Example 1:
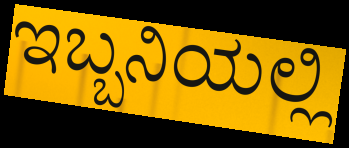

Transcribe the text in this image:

ಇಬ್ಬನಿಯಲ್ಲಿ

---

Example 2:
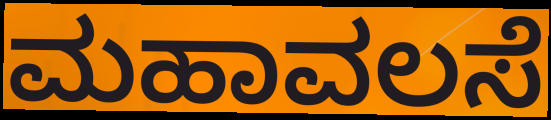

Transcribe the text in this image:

ಮಹಾವಲಸೆ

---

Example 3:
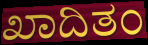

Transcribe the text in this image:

ಖಾದಿತಂ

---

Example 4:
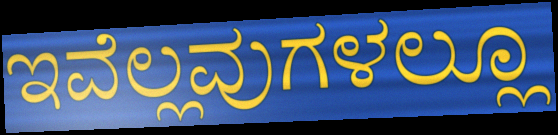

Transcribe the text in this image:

ಇವೆಲ್ಲವುಗಳಲ್ಲೂ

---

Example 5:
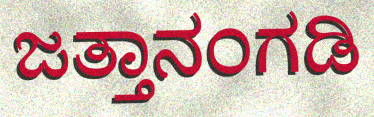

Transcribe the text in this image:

ಜತ್ತಾನಂಗಡಿ